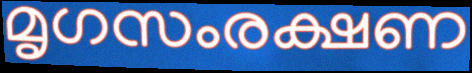
മൃഗസംരക്ഷണ